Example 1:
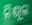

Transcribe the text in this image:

ନିଶୂଳ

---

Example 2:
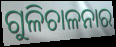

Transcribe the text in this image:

ଗୁଳିଚାଳନାର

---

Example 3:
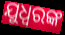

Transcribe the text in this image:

ଯୁଧ୍ୱରଙ୍କ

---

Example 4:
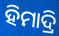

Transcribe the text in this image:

ହିମାଦ୍ରି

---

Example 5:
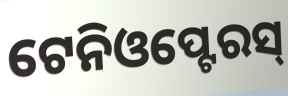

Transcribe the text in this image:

ଟେନିଓପ୍ଟେରସ୍